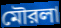
মৌরলা